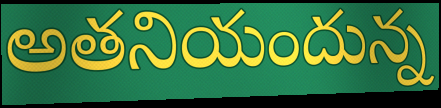
అతనియందున్న